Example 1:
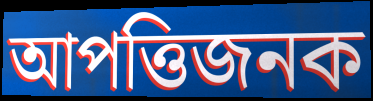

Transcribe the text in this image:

আপত্তিজনক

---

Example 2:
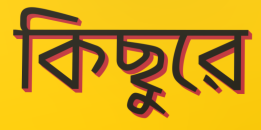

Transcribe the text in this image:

কিছুৱে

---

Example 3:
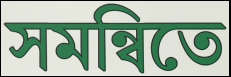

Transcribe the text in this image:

সমন্বিতে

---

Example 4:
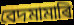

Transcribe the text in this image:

বেদমামাৰি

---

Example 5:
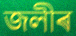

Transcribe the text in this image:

জলীৰ